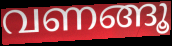
വണങ്ങൂ